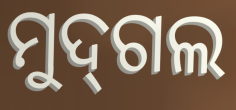
ମୁଦ୍‌ଗଲ